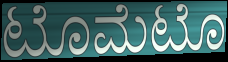
ಟೊಮೆಟೊ